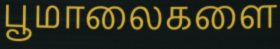
பூமாலைகளை